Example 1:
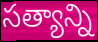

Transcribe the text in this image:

సత్యాన్ని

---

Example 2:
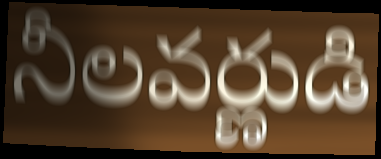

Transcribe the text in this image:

నీలవర్ణుడి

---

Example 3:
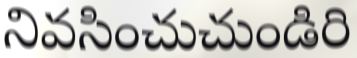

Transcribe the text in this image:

నివసించుచుండిరి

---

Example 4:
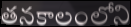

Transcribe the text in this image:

తనకాలంలోని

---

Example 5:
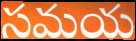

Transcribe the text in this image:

సమయ